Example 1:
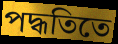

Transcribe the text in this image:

পদ্ধতিতে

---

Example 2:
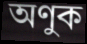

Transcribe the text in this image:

অণুক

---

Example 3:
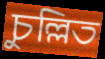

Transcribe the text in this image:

চুল্লিত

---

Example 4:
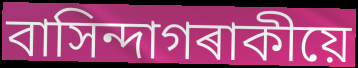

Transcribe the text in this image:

বাসিন্দাগৰাকীয়ে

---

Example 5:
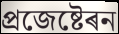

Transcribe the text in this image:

প্ৰজেষ্টেৰন